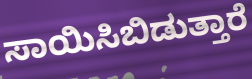
ಸಾಯಿಸಿಬಿಡುತ್ತಾರೆ